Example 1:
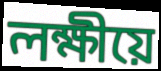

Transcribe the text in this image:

লক্ষীয়ে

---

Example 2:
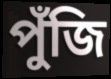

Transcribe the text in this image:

পুঁজি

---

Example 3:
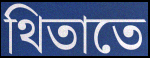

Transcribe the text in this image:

থিতাতে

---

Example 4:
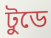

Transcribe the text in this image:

টুডে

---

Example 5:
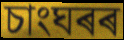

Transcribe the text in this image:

চাংঘৰৰ